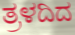
ತ್ರಳದಿದ